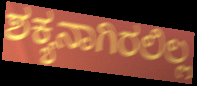
ಶಕ್ಯನಾಗಿರಲಿಲ್ಲ